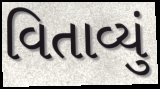
વિતાવ્યું